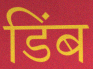
डिंब